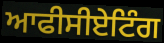
ਆਫੀਸੀਏਟਿੰਗ